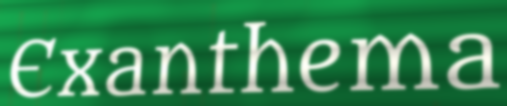
Exanthema